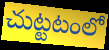
చుట్టటంలో